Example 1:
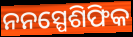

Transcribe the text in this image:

ନନସ୍ପେଶିଫିକ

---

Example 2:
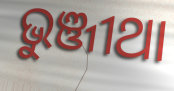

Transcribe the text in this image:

ଭୁଞ୍ଜୀଥା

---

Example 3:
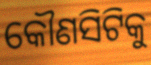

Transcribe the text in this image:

କୌଣସିଟିକୁ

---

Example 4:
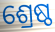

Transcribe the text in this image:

ଶ୍ରେଷ୍ଠ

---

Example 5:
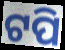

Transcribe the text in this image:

ଟପି